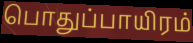
பொதுப்பாயிரம்